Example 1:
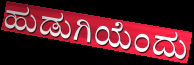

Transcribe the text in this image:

ಹುಡುಗಿಯೆಂದು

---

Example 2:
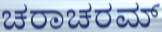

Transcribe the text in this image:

ಚರಾಚರಮ್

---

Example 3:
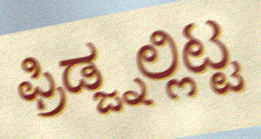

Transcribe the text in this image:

ಫ್ರಿಡ್ಜ್ನಲ್ಲಿಟ್ಟ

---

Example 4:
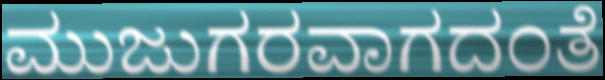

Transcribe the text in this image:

ಮುಜುಗರವಾಗದಂತೆ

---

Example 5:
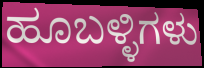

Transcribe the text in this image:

ಹೂಬಳ್ಳಿಗಳು